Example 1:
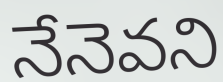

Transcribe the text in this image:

నేనెవని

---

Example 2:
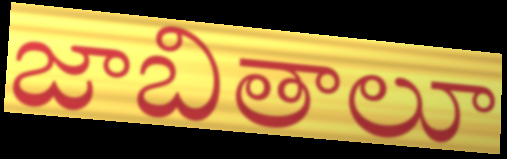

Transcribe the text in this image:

జాబితాలూ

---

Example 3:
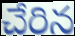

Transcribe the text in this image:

చేరిన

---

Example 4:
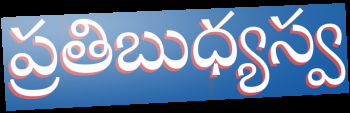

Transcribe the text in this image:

ప్రతిబుధ్యస్వ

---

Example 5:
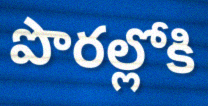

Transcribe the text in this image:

పొరల్లోకి